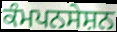
ਕੰਮਪਨਸੇਸ਼ਨ